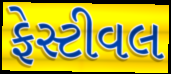
ફેસ્ટીવલ